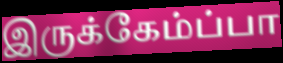
இருக்கேம்ப்பா